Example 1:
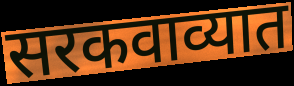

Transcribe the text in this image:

सरकवाव्यात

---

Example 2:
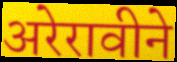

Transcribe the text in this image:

अरेरावीने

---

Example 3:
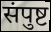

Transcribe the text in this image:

संपुष्ट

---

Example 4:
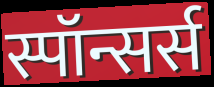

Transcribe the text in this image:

स्पॉन्सर्स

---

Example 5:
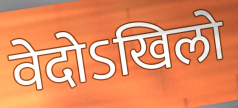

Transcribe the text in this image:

वेदोऽखिलो